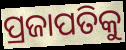
ପ୍ରଜାପତିକୁ